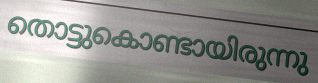
തൊട്ടുകൊണ്ടായിരുന്നു